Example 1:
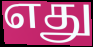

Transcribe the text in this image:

எது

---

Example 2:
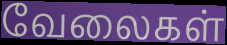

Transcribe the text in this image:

வேலைகள்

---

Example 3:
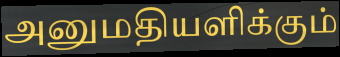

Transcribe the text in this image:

அனுமதியளிக்கும்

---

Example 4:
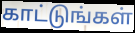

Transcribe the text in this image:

காட்டுங்கள்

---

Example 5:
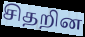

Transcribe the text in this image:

சிதறின